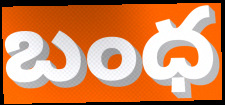
బంధ